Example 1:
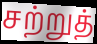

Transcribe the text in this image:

சற்றுத்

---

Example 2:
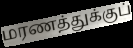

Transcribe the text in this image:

மரணத்துக்குப்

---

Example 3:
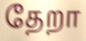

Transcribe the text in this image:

தேறா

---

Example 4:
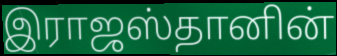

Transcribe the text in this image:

இராஜஸ்தானின்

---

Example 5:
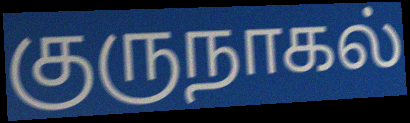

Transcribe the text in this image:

குருநாகல்